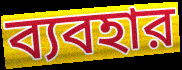
ব্যবহার